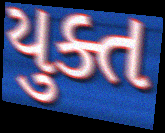
યુક્ત